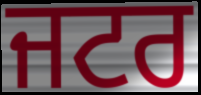
ਜਟਰ